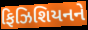
ફિઝિશિયનને